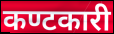
कण्टकारी